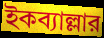
ইকব্যাল্লার